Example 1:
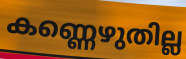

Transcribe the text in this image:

കണ്ണെഴുതില്ല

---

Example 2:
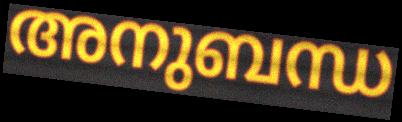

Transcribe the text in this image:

അനുബന്ധ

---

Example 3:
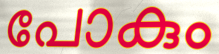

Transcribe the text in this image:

പോകും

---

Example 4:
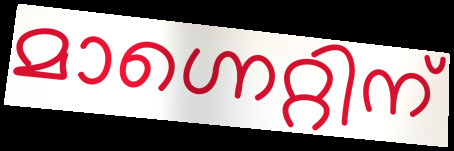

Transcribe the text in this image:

മാഗ്നെറ്റിന്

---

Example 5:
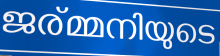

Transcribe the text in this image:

ജര്മ്മനിയുടെ